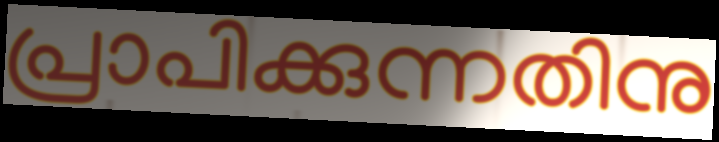
പ്രാപിക്കുന്നതിനു